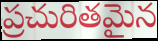
ప్రచురితమైన